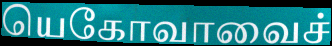
யெகோவாவைச்